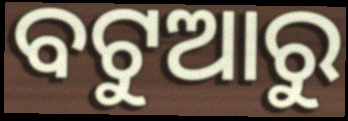
ବଟୁଆରୁ